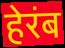
हेरंब